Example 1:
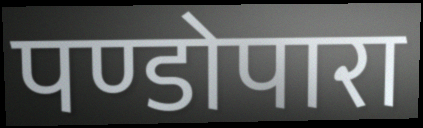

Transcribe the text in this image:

पण्डोपारा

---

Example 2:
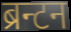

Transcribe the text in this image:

ब्रन्टन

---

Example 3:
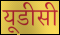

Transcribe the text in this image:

यूडीसी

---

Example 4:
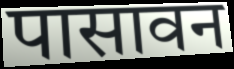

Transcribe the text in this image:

पासावन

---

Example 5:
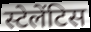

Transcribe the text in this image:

स्टेलेंटिस